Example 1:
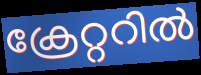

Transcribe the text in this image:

ക്രേറ്ററിൽ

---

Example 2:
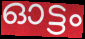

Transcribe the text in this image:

ഓട്ടം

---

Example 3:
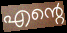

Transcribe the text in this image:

എന്റെ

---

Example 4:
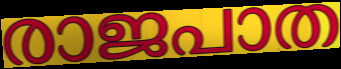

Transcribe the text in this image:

രാജപാത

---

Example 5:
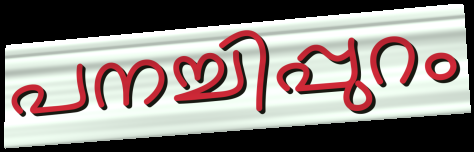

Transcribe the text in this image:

പനച്ചിപ്പുറം